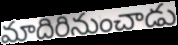
మాదిరినుంచాడు